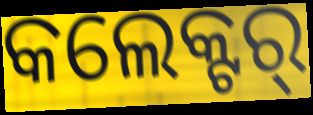
କଲେକ୍ଟର୍